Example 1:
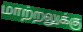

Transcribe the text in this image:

மாற்றலுக்கு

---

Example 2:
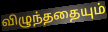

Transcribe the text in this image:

விழுந்ததையும்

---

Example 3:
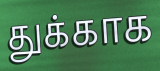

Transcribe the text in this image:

துக்காக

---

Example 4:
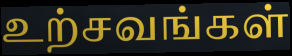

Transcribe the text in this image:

உற்சவங்கள்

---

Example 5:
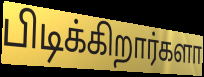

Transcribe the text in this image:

பிடிக்கிறார்களா